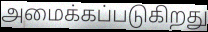
அமைக்கப்படுகிறது